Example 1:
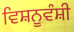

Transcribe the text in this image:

ਵਿਸ਼ਨੂਵੰਸ਼ੀ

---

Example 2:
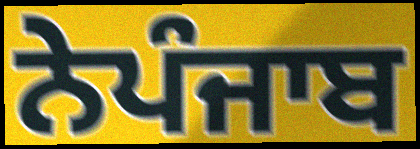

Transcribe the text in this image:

ਨੇਪੰਜਾਬ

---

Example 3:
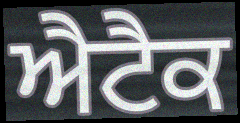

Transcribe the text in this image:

ਐਟੈਕ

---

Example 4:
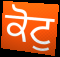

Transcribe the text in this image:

ਕੋਟੁ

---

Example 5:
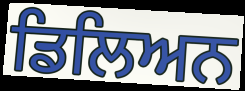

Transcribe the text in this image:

ਡਿਲਿਅਨ